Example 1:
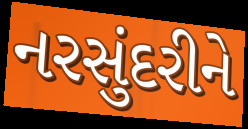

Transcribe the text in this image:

નરસુંદરીને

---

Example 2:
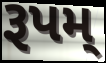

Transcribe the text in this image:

રૂપમ્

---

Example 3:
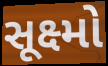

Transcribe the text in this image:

સૂક્ષ્મો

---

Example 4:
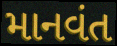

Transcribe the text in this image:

માનવંત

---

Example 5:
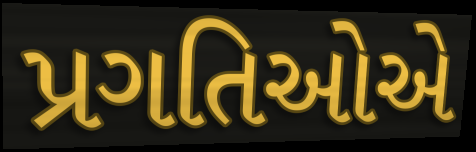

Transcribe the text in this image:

પ્રગતિઓએ